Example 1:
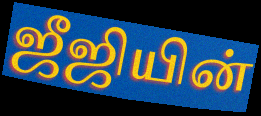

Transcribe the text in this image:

ஜீஜியின்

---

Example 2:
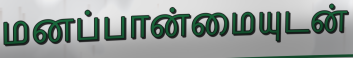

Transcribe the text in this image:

மனப்பான்மையுடன்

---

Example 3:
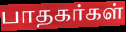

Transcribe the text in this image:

பாதகர்கள்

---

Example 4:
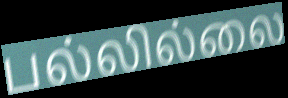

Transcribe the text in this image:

பல்லில்லை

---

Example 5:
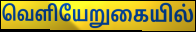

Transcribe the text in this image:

வெளியேறுகையில்